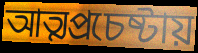
আত্মপ্রচেষ্টায়